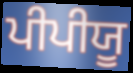
ਪੀਪੀਯੂ